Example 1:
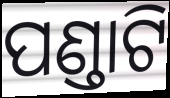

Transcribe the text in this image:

ପଣ୍ଡାଟି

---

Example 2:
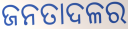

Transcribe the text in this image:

ଜନତାଦଳର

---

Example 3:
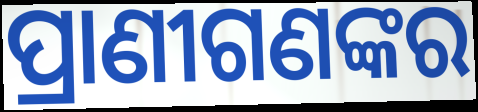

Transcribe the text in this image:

ପ୍ରାଣୀଗଣଙ୍କର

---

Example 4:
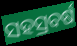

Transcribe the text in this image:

ସହସ୍ରବର୍ଷ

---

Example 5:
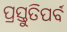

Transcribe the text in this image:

ପ୍ରସ୍ତୁତିପର୍ବ